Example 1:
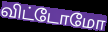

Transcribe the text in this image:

விட்டோமோ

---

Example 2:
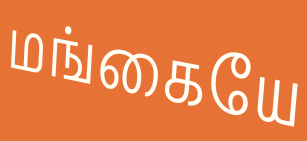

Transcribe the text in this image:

மங்கையே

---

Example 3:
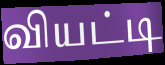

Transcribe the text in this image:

வியட்டி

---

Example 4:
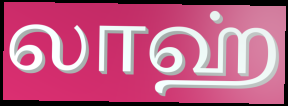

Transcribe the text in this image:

லாஹ்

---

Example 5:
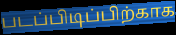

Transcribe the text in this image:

படப்பிடிப்பிற்காக